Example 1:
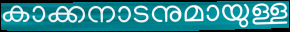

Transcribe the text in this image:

കാക്കനാടനുമായുള്ള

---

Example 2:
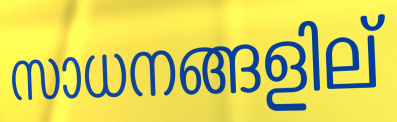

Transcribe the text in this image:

സാധനങ്ങളില്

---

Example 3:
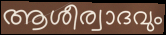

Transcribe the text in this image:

ആശീര്വാദവും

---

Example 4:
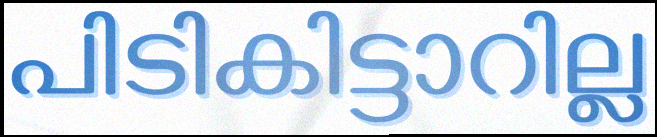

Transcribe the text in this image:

പിടികിട്ടാറില്ല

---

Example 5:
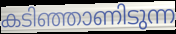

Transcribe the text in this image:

കടിഞ്ഞാണിടുന്ന